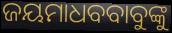
ଜୟମାଧବବାବୁଙ୍କୁ